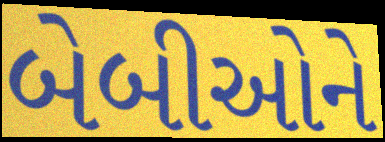
બેબીઓને